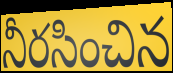
నీరసించిన